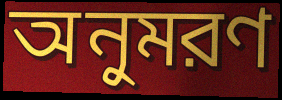
অনুমরণ